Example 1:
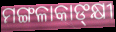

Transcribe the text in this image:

ମଙ୍ଗଳାକାଙ୍କ୍ଷୀ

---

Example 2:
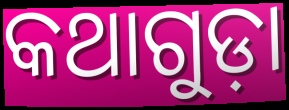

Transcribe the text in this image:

କଥାଗୁଡ଼ା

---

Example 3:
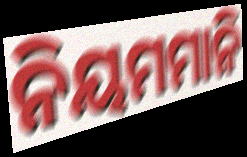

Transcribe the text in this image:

ନିୟମମାନି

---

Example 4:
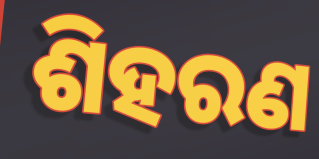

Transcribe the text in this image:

ଶିହରଣ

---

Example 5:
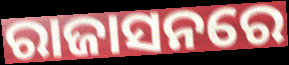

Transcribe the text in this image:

ରାଜାସନରେ